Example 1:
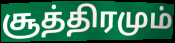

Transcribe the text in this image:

சூத்திரமும்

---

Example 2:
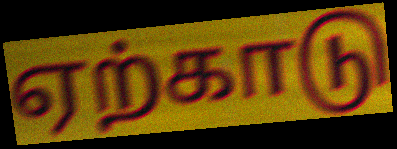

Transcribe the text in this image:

ஏற்காடு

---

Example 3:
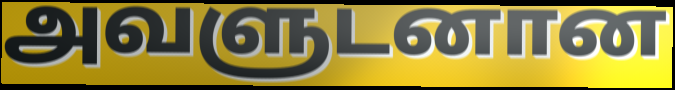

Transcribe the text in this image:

அவளுடனான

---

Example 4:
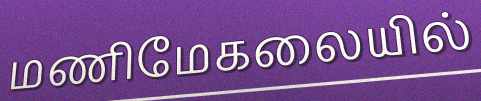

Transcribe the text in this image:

மணிமேகலையில்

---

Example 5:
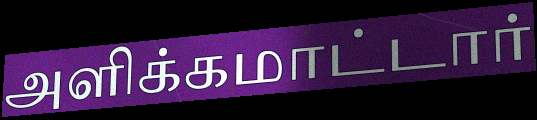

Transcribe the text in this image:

அளிக்கமாட்டார்